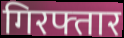
गिरफ्‍तार